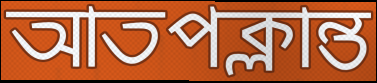
আতপক্লান্ত